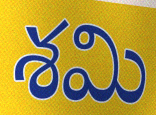
శమి